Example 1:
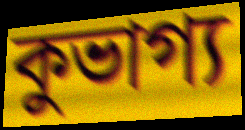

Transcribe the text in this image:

কুভাগ্য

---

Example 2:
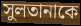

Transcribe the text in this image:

সুলতানাকে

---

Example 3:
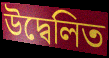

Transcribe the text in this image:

উদ্বেলিত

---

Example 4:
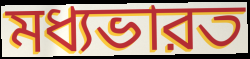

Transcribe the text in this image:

মধ্যভারত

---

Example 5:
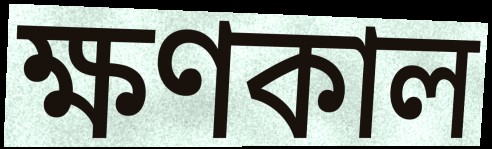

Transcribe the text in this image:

ক্ষণকাল